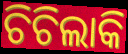
ଚିଚିଲାକି